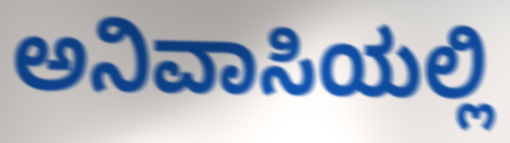
ಅನಿವಾಸಿಯಲ್ಲಿ